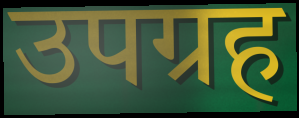
उपग्रह